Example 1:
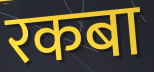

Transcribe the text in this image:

रकबा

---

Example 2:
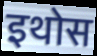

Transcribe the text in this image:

इथोस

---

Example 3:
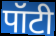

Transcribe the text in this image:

पॉटी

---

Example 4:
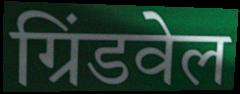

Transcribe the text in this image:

ग्रिंडवेल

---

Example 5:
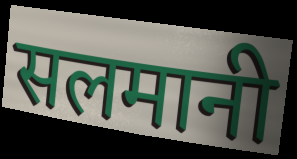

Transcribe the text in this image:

सलमानी